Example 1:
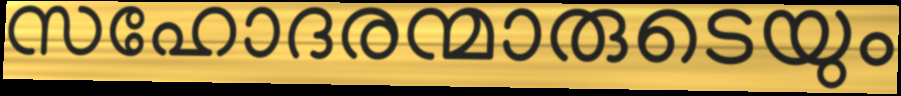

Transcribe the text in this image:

സഹോദരന്മാരുടെയും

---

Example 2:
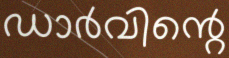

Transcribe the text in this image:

ഡാർവിന്റെ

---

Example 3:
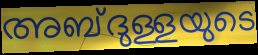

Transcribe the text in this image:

അബ്ദുള്ളയുടെ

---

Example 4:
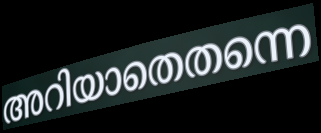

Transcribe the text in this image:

അറിയാതെതന്നെ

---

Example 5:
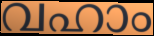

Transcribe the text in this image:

വഹാം